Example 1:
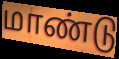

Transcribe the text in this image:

மாண்டு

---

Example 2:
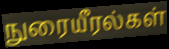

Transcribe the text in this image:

நுரையீரல்கள்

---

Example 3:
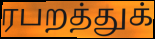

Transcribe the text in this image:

ரபறத்துக்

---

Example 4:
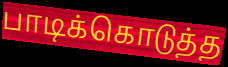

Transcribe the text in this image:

பாடிக்கொடுத்த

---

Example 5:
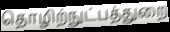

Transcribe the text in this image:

தொழிற்நுட்பத்துறை